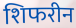
शिफरीन